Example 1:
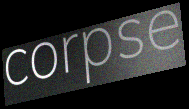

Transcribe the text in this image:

corpse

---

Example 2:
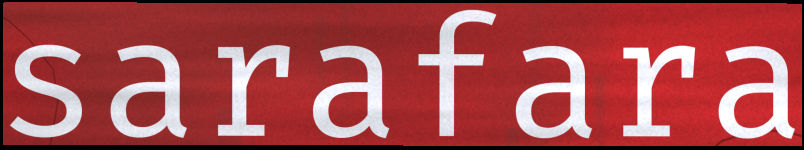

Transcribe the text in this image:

sarafara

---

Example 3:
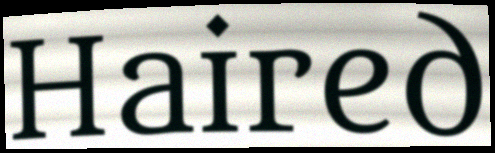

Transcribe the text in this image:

Haired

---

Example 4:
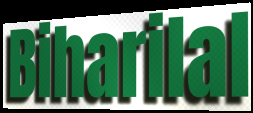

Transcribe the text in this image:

Biharilal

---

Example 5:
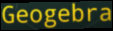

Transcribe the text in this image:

Geogebra